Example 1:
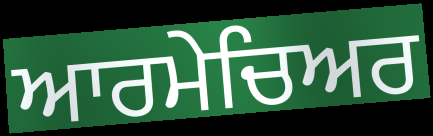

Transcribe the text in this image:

ਆਰਮੇਚਿਅਰ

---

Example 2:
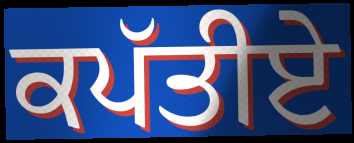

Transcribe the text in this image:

ਕਪੱਤੀਏ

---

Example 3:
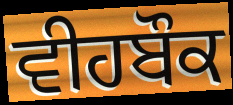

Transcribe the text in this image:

ਵੀਹਬੌਕ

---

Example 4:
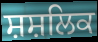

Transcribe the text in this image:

ਸ਼ਸ਼ਲਿਕ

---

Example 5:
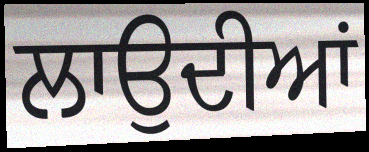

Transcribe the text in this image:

ਲਾਉਦੀਆਂ